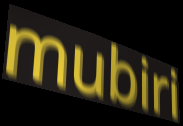
mubiri